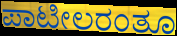
ಪಾಟೀಲರಂತೂ